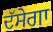
ਦੱਸੇਗਾ